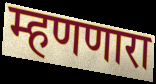
म्हणणारा